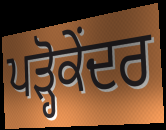
ਪੜ੍ਹੋਕੇਂਦਰ